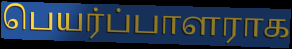
பெயர்ப்பாளராக